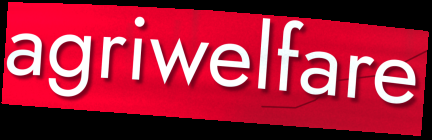
agriwelfare